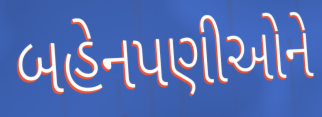
બહેનપણીઓને